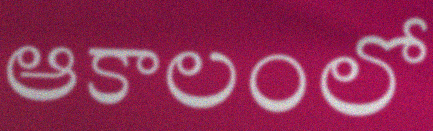
ఆకాలంలో